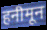
हनीमून